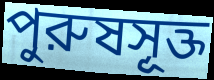
পুৰুষসূক্ত